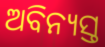
ଅବିନ୍ୟସ୍ତ